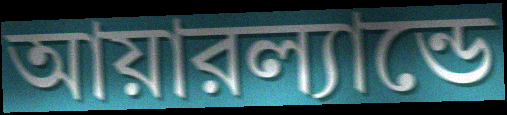
আয়ারল্যান্ডে